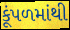
કૂંપળમાંથી